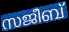
സജീബ്